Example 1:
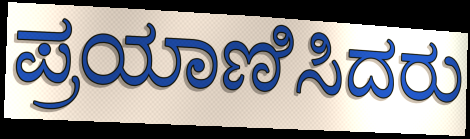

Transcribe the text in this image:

ಪ್ರಯಾಣಿಸಿದರು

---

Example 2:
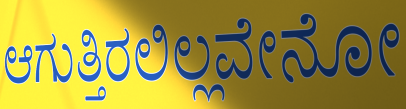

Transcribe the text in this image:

ಆಗುತ್ತಿರಲಿಲ್ಲವೇನೋ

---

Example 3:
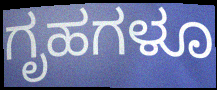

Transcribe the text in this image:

ಗೃಹಗಳೂ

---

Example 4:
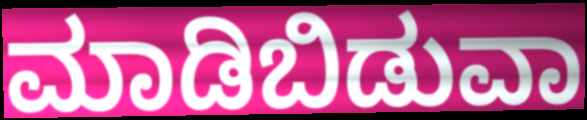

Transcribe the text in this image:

ಮಾಡಿಬಿಡುವಾ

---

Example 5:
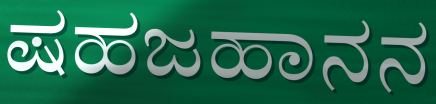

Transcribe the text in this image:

ಷಹಜಹಾನನ